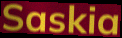
Saskia